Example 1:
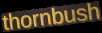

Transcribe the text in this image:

thornbush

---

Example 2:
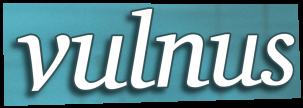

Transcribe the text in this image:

vulnus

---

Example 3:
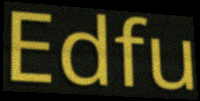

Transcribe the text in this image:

Edfu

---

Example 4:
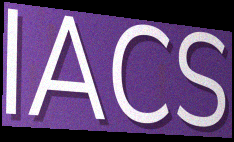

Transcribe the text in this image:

IACS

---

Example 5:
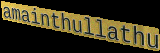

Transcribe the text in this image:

amainthullathu